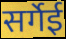
सर्गेई